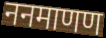
ननमाणण